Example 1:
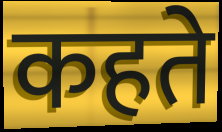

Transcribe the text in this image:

कहते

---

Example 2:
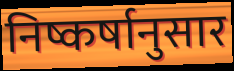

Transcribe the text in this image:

निष्कर्षानुसार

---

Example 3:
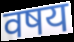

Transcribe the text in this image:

वषय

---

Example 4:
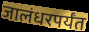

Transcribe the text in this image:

जालंधरपर्यंत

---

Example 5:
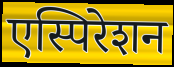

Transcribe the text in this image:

एस्पिरेशन